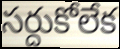
సర్దుకోలేక